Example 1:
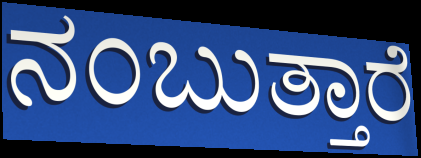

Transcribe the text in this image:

ನಂಬುತ್ತಾರೆ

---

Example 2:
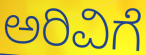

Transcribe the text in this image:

ಅರಿವಿಗೆ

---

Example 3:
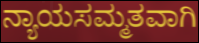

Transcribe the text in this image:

ನ್ಯಾಯಸಮ್ಮತವಾಗಿ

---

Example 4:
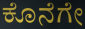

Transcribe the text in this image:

ಕೊನೆಗೇ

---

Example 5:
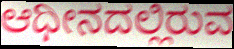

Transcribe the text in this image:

ಆಧೀನದಲ್ಲಿರುವ